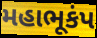
મહાભૂકંપ